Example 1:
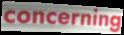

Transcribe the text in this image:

concerning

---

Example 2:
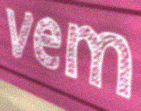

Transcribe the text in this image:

vem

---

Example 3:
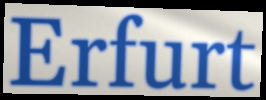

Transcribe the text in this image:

Erfurt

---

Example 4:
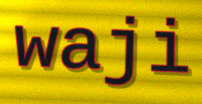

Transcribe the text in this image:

waji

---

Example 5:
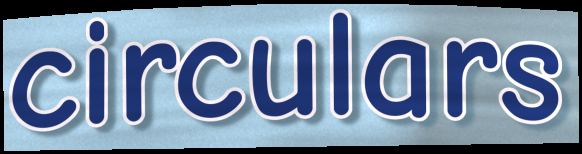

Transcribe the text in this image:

circulars